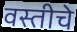
वस्तीचे